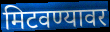
मिटवण्यावर